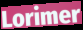
Lorimer